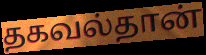
தகவல்தான்